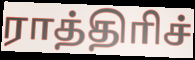
ராத்திரிச்